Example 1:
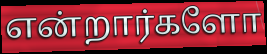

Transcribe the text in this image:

என்றார்களோ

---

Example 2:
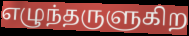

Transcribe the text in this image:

எழுந்தருளுகிற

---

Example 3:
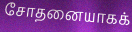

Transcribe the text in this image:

சோதனையாகக்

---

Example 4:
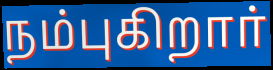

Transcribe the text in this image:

நம்புகிறார்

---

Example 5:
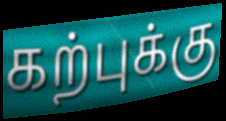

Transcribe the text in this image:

கற்புக்கு